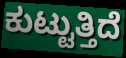
ಕುಟ್ಟುತ್ತಿದೆ